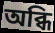
অব্ধি